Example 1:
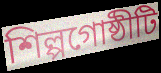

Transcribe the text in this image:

শিল্পগোষ্ঠীটি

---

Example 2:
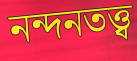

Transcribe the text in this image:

নন্দনতত্ত্ব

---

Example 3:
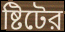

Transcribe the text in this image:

ষ্টিটের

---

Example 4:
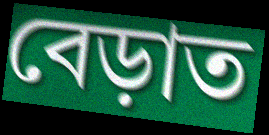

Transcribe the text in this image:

বেড়াত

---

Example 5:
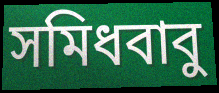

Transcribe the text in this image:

সমিধবাবু